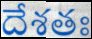
దేశతః